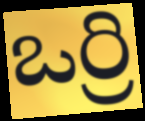
ఒర్రి